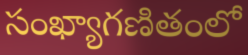
సంఖ్యాగణితంలో